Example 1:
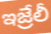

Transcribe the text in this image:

ఇజ్రేలీ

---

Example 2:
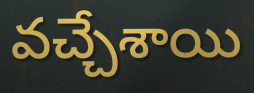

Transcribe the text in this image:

వచ్చేశాయి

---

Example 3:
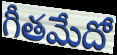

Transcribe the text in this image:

గీతమేదో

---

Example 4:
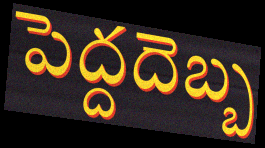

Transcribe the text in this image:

పెద్దదెబ్బ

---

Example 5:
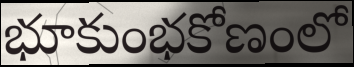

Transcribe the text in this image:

భూకుంభకోణంలో